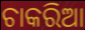
ଚାକରିଆ